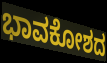
ಭಾವಕೋಶದ